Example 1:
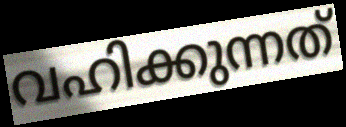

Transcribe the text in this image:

വഹിക്കുന്നത്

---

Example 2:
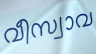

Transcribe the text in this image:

വീസ്വാവ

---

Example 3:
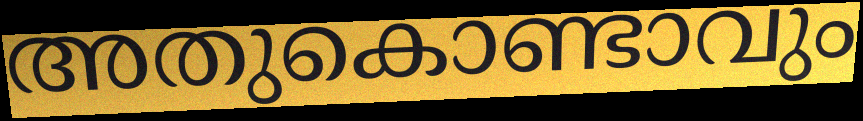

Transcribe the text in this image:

അതുകൊണ്ടാവും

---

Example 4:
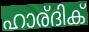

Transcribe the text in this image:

ഹാര്ദിക്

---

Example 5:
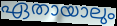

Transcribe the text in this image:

ഏതായാലും